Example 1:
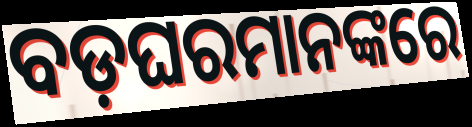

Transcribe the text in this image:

ବଡ଼ଘରମାନଙ୍କରେ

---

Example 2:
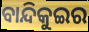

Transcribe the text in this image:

ବାନ୍ଦିକୁଇର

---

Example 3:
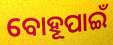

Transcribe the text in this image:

ବୋହୂପାଇଁ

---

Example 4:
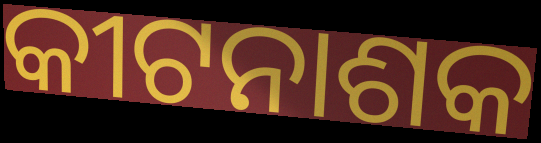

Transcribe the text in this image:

କୀଟନାଶକ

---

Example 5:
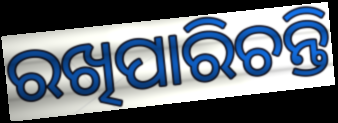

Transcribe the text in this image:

ରଖିପାରିଚନ୍ତି